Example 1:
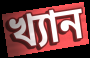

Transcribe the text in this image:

খ্যান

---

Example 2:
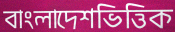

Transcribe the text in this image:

বাংলাদেশভিত্তিক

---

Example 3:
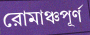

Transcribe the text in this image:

রোমাঞ্চপূর্ণ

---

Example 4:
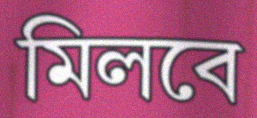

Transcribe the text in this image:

মিলবে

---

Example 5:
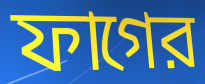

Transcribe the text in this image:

ফাগের